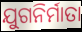
ଯୁଗନିର୍ମାତା